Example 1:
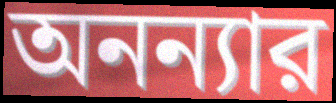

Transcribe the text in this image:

অনন্যার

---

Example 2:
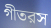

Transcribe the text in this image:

গীতরস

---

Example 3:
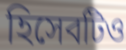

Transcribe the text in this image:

হিসেবটিও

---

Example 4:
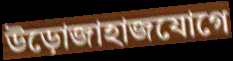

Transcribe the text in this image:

উড়োজাহাজযোগে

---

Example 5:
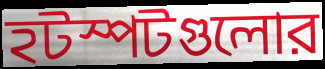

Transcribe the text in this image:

হটস্পটগুলোর